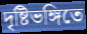
দৃষ্টিভঙ্গিতে